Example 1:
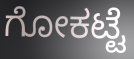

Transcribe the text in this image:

ಗೋಕಟ್ಟೆ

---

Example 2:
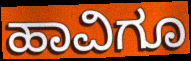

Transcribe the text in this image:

ಹಾವಿಗೂ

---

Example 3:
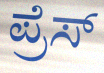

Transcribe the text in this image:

ಪ್ರೆಸ್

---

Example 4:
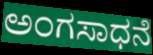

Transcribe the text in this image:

ಅಂಗಸಾಧನೆ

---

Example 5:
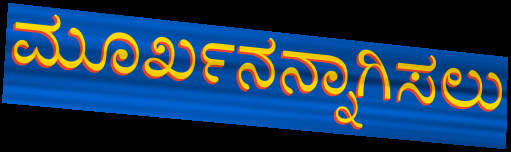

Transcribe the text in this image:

ಮೂರ್ಖನನ್ನಾಗಿಸಲು